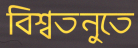
বিশ্বতনুতে